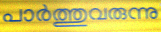
പാർത്തുവരുന്നു